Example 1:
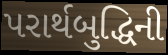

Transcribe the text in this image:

પરાર્થબુદ્ધિની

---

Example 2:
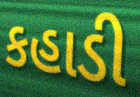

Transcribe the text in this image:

કહાડી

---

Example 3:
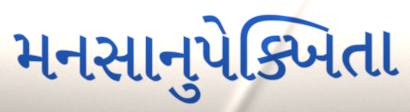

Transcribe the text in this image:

મનસાનુપેક્ખિતા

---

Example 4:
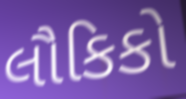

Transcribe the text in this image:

લૌકિકો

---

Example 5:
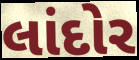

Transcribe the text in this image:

લાંદોર